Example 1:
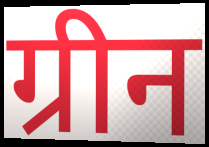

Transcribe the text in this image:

ग्रीन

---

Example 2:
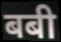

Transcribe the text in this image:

बबी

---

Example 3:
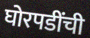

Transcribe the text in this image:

घोरपडींची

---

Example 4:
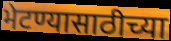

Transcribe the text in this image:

भेटण्यासाठीच्या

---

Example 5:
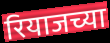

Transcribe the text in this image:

रियाजच्या